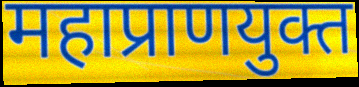
महाप्राणयुक्त